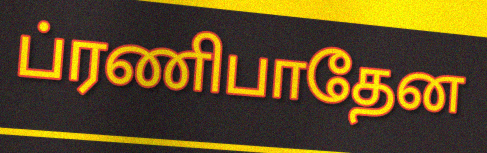
ப்ரணிபாதேன